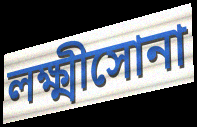
লক্ষ্মীসোনা